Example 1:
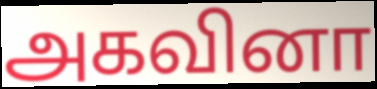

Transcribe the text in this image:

அகவினா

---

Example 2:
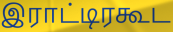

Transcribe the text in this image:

இராட்டிரகூட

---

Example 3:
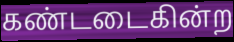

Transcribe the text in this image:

கண்டடைகின்ற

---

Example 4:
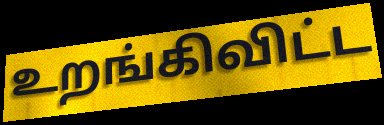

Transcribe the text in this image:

உறங்கிவிட்ட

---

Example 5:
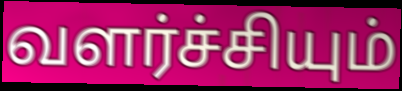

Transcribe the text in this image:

வளர்ச்சியும்